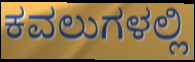
ಕವಲುಗಳಲ್ಲಿ